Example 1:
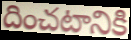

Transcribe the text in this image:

దించటానికి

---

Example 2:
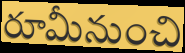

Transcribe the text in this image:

రూమీనుంచి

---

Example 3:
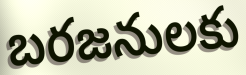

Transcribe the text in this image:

బరజనులకు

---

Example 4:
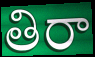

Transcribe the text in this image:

తిరా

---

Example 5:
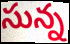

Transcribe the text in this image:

సున్న